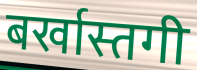
बर्खास्तगी